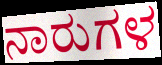
ನಾರುಗಳ